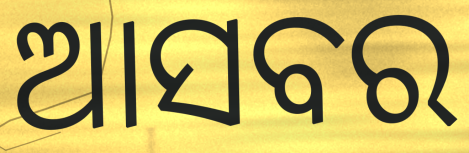
ଆସବର